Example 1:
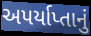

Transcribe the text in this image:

અપર્યાપ્તાનું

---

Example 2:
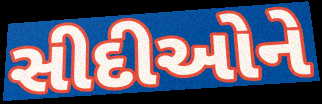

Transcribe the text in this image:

સીદીઓને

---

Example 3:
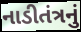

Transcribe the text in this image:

નાડીતંત્રનું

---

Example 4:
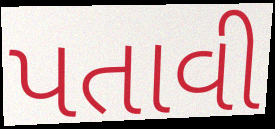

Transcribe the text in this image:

પતાવી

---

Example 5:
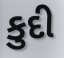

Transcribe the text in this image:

કુદી